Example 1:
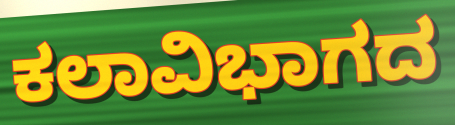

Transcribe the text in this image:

ಕಲಾವಿಭಾಗದ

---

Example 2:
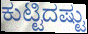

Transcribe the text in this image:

ಕುಟ್ಟಿದಷ್ಟು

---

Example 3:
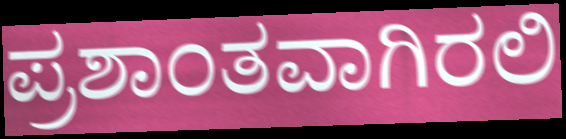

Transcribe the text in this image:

ಪ್ರಶಾಂತವಾಗಿರಲಿ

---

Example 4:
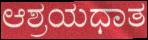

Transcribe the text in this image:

ಆಶ್ರಯಧಾತ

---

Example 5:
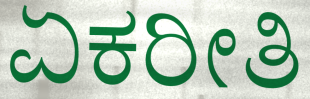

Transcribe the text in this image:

ಏಕರೀತಿ